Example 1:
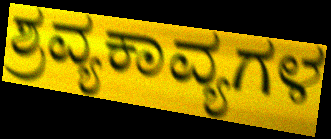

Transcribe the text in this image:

ಶ್ರವ್ಯಕಾವ್ಯಗಳ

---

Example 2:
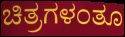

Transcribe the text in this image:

ಚಿತ್ರಗಳಂತೂ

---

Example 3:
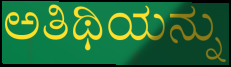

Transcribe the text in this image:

ಅತಿಥಿಯನ್ನು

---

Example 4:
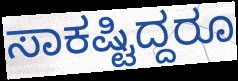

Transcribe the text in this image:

ಸಾಕಷ್ಟಿದ್ದರೂ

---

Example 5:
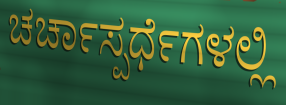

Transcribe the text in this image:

ಚರ್ಚಾಸ್ಪರ್ಧೆಗಳಲ್ಲಿ